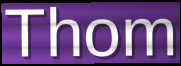
Thom